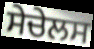
ਸੇਚੇਲਸ